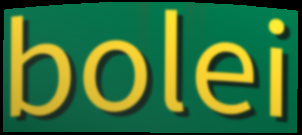
bolei